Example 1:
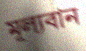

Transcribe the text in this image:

মূল্যবান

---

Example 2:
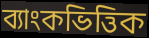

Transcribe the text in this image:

ব্যাংকভিত্তিক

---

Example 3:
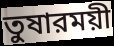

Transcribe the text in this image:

তুষারময়ী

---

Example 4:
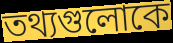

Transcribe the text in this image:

তথ্যগুলোকে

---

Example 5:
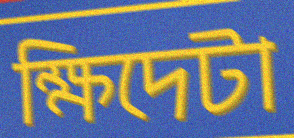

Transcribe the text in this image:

ক্ষিদেটা